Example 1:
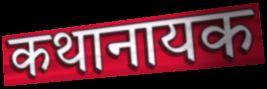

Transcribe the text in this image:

कथानायक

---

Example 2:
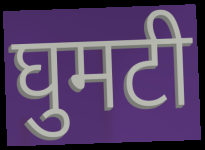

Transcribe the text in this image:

घुमटी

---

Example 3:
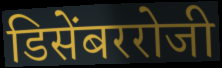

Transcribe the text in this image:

डिसेंबररोजी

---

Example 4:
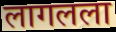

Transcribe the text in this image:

लागलला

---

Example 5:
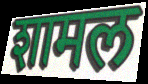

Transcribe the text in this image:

शामल